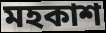
মহকাশ